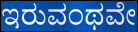
ಇರುವಂಥವೇ